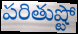
పరితుష్టో